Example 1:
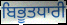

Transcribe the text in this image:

ਬਿਭੂਤਧਾਰੀ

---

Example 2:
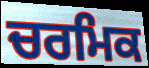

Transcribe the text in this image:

ਚਰਮਿਕ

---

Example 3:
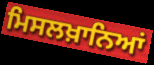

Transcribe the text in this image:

ਮਿਸਲਖ਼ਾਨਿਆਂ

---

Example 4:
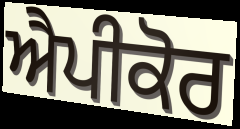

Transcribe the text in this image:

ਐਪੀਕੋਰ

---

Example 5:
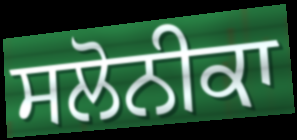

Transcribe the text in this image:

ਸਲੋਨੀਕਾ